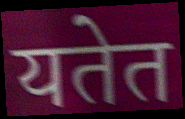
यतेत